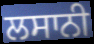
ਲਸਾਨੀ